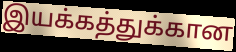
இயக்கத்துக்கான